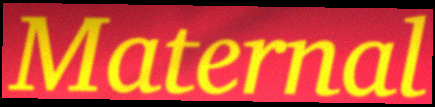
Maternal